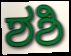
ಶಶಿ